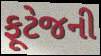
ફૂટેજની